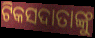
ଟିକସଦାତାଙ୍କୁ